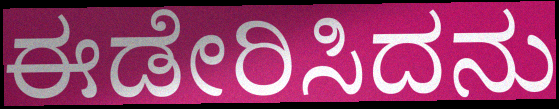
ಈಡೇರಿಸಿದನು